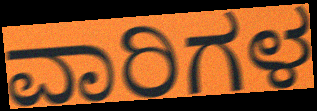
ವಾರಿಗಳ